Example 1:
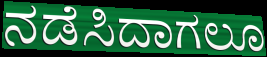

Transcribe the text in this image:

ನಡೆಸಿದಾಗಲೂ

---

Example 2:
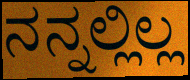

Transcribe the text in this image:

ನನ್ನಲ್ಲಿಲ್ಲ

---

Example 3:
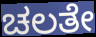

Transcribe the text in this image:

ಚಲತೇ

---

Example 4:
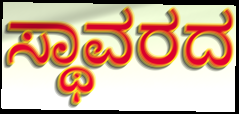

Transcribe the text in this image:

ಸ್ಥಾವರದ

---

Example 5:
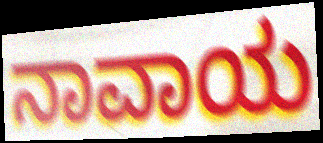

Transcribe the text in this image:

ನಾವಾಯ